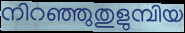
നിറഞ്ഞുതുളുമ്പിയ